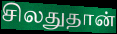
சிலதுதான்